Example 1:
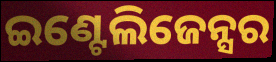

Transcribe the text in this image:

ଇଣ୍ଟେଲିଜେନ୍ସର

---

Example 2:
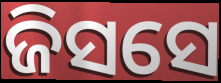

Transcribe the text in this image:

ଜିସସେ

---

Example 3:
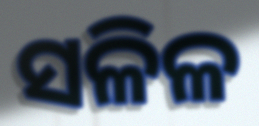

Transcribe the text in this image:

ସଳିଳ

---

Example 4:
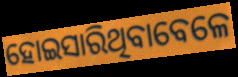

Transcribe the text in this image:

ହୋଇସାରିଥିବାବେଳେ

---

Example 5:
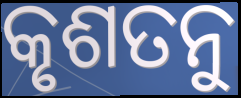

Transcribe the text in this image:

କୃଶତନୁ